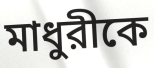
মাধুরীকে